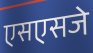
एसएसजे